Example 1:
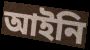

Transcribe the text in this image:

আইনি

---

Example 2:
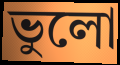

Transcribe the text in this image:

ভুলো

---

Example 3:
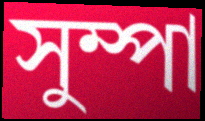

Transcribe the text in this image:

সুম্পা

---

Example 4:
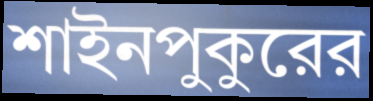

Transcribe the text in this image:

শাইনপুকুরের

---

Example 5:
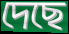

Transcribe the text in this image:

দেছে